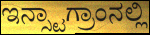
ಇನ್ಸ್ಟಾಗ್ರಾಂನಲ್ಲಿ